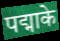
पद्माके